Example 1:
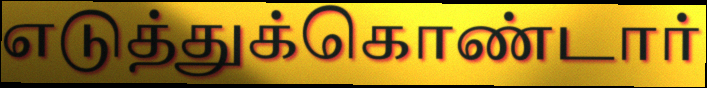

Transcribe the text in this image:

எடுத்துக்கொண்டார்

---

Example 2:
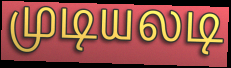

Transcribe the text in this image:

முடியலடி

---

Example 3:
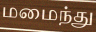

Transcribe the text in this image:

மமைந்து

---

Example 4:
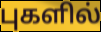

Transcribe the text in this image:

புகளில்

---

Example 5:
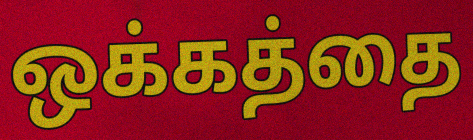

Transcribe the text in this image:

ஒக்கத்தை